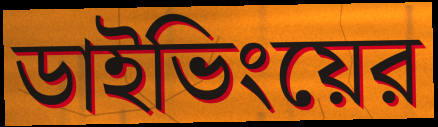
ডাইভিংয়ের